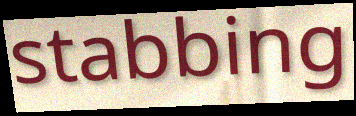
stabbing